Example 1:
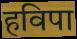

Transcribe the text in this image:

हविपा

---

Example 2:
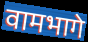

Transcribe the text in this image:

वामभागे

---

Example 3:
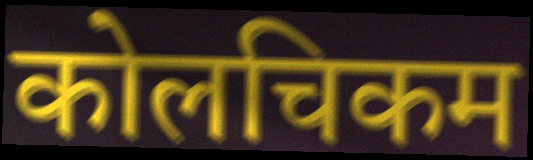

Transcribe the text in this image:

कोलचिकम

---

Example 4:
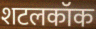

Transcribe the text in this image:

शटलकॉक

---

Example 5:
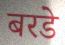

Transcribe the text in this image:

बरडे